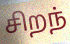
சிறந்